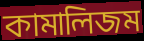
কামালিজম